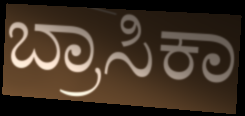
ಬ್ರಾಸಿಕಾ